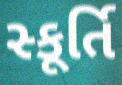
સ્કૂર્તિ